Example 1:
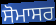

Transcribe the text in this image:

ਸੋਮਾਸਰ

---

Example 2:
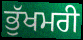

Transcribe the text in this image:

ਭੁੱਖਮਰੀ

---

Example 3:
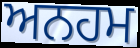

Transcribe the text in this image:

ਅਨਹਮ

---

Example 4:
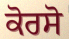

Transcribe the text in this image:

ਕੋਰਸੋ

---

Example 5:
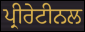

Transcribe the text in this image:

ਪ੍ਰੀਰੇਟੀਨਲ